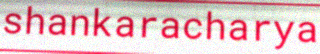
shankaracharya